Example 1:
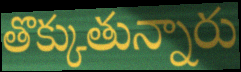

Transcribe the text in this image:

తొక్కుతున్నారు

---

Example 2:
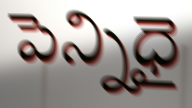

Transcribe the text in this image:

పెన్నిధై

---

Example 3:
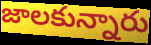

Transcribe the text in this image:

జాలకున్నారు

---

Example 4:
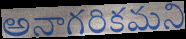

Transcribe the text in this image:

అనాగరికమని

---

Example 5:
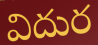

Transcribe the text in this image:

విదుర